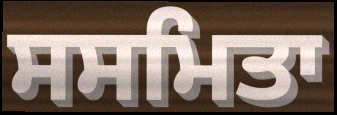
ਸਸਮਿਤਾ